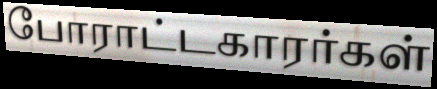
போராட்டகாரர்கள்